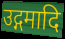
उद्गमादि